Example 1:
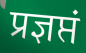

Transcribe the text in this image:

प्रज्ञप्तं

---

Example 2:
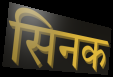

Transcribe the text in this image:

सिनक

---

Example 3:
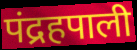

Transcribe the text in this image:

पंद्रहपाली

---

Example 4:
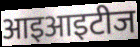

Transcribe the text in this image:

आइआइटीज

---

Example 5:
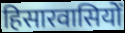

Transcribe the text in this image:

हिसारवासियों